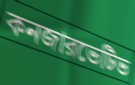
কনজারভেটিভ